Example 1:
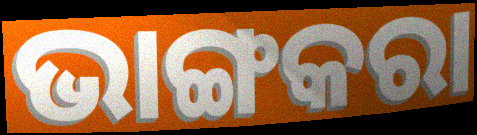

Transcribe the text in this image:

ଭାଙ୍ଗକରା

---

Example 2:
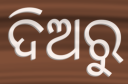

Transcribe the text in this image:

ଦିଅରୁ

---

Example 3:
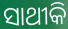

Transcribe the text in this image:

ସାଥୀକି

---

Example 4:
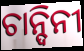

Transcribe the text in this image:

ଚାନ୍ଦିନୀ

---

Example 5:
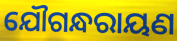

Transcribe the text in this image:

ଯୌଗନ୍ଧରାୟଣ